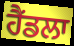
ਹੈਂਡਲਾ